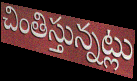
చింతిస్తున్నట్లు